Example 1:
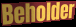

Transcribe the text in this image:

Beholder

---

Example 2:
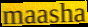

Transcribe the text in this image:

maasha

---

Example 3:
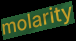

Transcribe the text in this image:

molarity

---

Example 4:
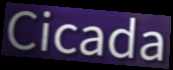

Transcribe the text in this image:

Cicada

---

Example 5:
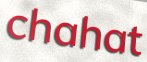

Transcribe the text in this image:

chahat